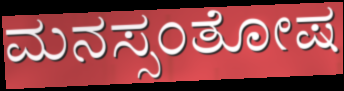
ಮನಸ್ಸಂತೋಷ